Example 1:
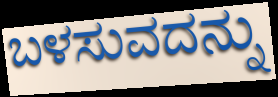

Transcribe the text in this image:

ಬಳಸುವದನ್ನು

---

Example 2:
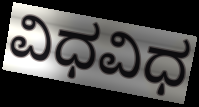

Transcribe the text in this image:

ವಿಧವಿಧ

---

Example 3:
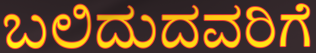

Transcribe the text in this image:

ಬಲಿದುದವರಿಗೆ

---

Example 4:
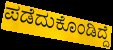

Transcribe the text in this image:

ಪಡೆದುಕೊಂಡಿದ್ದೆ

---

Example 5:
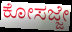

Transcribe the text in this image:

ಕೋಸಜ್ಜೇ